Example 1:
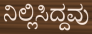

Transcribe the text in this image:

ನಿಲ್ಲಿಸಿದ್ದವು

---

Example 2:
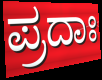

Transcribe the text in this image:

ಪ್ರದಾಃ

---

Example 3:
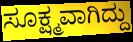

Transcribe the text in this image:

ಸೂಕ್ಷ್ಮವಾಗಿದ್ದು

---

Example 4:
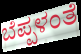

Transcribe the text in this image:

ಬೆಪ್ಪಳಂತೆ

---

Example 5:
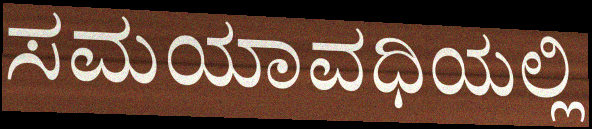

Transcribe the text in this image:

ಸಮಯಾವಧಿಯಲ್ಲಿ